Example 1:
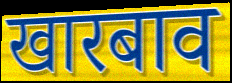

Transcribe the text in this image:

खारबाव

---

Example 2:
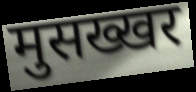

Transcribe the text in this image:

मुसख्खर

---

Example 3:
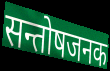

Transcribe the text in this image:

सन्तोषजनक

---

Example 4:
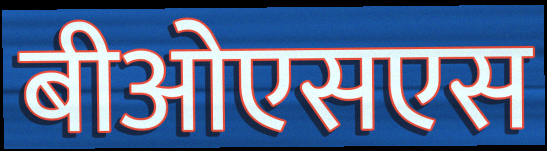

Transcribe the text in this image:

बीओएसएस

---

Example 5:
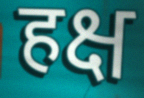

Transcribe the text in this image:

हक्ष